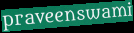
praveenswami